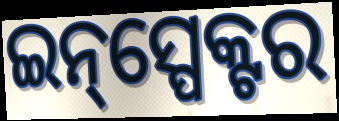
ଇନ୍‌ସ୍ପେକ୍ଟର